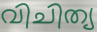
വിചിത്യ